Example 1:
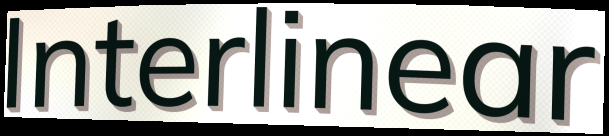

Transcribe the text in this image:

Interlinear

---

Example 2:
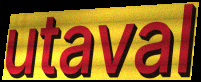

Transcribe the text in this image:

utaval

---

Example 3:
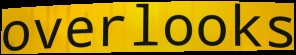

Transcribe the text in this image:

overlooks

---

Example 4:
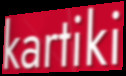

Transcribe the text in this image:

kartiki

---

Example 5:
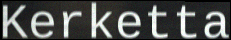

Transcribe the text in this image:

Kerketta